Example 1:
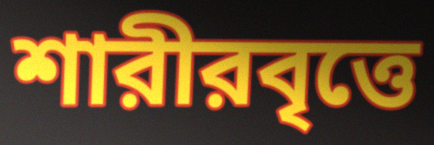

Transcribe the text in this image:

শারীরবৃত্তে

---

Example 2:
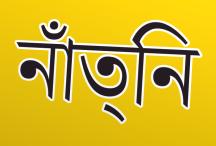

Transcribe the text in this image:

নাঁত্‌নি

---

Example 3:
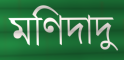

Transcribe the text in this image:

মণিদাদু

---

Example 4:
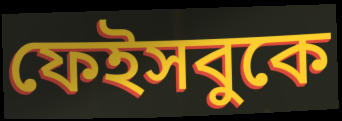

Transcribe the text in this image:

ফেইসবুকে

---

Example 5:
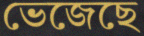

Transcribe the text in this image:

ভেজেছে